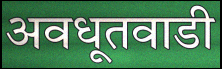
अवधूतवाडी